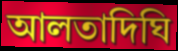
আলতাদিঘি